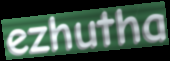
ezhutha